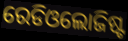
ରେଡିଓଲୋଜିଷ୍ଟ